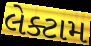
લેક્ટામ